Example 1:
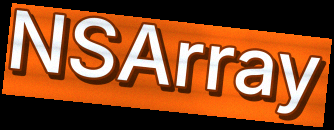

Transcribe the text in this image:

NSArray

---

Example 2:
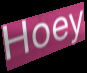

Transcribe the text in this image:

Hoey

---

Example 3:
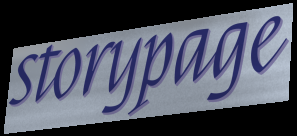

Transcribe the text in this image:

storypage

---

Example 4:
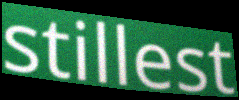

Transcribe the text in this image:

stillest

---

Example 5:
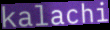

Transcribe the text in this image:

kalachi